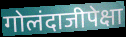
गोलंदाजीपेक्षा